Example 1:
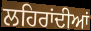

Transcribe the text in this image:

ਲਹਿਰਾਂਦੀਆਂ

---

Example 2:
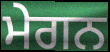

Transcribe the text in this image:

ਮੇਗਨ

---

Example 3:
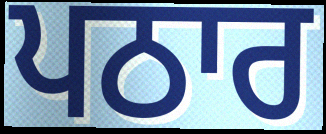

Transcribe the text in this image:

ਪਠਾਰ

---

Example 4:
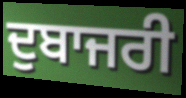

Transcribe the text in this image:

ਦੁਬਾਜਰੀ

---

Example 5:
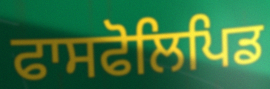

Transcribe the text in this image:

ਫਾਸਫੋਲਿਪਿਡ